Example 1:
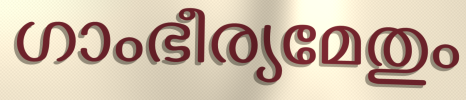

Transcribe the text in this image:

ഗാംഭീര്യമേതും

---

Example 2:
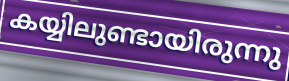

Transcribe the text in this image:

കയ്യിലുണ്ടായിരുന്നു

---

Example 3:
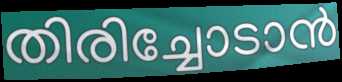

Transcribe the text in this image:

തിരിച്ചോടാൻ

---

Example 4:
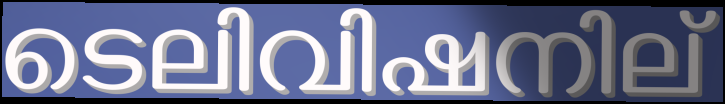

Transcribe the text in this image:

ടെലിവിഷനില്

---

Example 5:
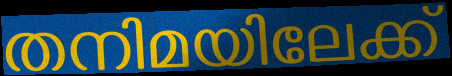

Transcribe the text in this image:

തനിമയിലേക്ക്